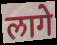
लागे